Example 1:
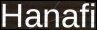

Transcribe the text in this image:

Hanafi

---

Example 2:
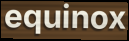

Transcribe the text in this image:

equinox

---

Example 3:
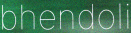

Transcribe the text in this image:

bhendoli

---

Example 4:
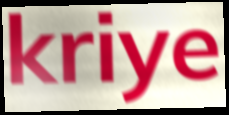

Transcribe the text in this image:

kriye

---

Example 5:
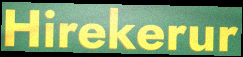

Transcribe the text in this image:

Hirekerur